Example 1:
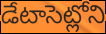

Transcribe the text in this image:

డేటాసెట్లోని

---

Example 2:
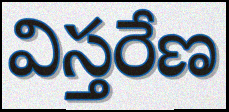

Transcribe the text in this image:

విస్తరేణ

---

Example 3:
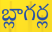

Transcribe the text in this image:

బ్లాగర్ల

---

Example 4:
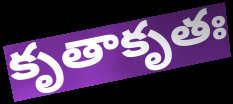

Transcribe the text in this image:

కృతాకృతః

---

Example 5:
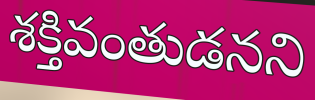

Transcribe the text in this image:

శక్తివంతుడనని